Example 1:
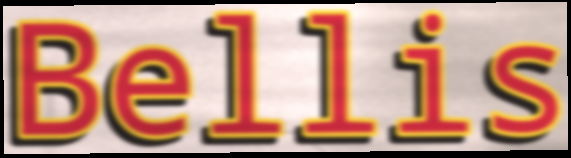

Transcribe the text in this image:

Bellis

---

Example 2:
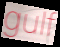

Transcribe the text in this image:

gulf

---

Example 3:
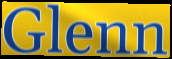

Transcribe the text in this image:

Glenn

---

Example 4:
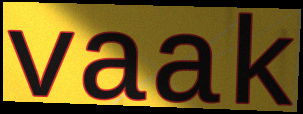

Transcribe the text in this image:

vaak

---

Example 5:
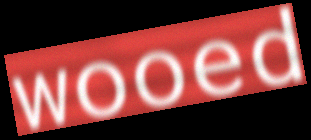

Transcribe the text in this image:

wooed